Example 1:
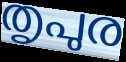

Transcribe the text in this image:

തൃപുര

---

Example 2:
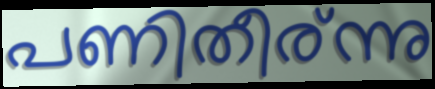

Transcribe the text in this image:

പണിതീര്ന്നു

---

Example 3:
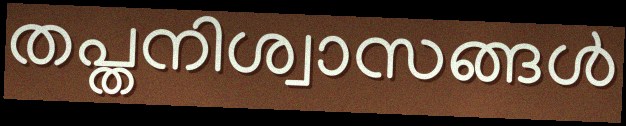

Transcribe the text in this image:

തപ്തനിശ്വാസങ്ങൾ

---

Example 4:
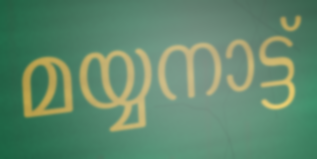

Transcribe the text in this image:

മയ്യനാട്ട്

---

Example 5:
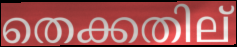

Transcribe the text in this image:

തെക്കതില്